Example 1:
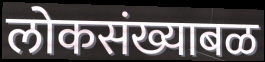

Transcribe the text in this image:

लोकसंख्याबळ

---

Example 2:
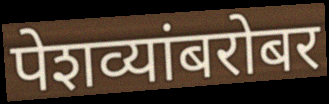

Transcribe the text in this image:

पेशव्यांबरोबर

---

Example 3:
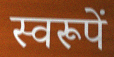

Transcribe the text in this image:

स्वरूपें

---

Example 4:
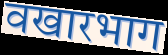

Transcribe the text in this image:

वखारभाग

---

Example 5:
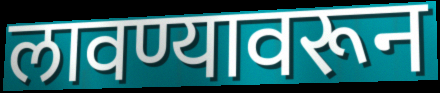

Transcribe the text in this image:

लावण्यावरून